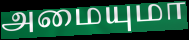
அமையுமா